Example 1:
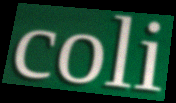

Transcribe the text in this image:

coli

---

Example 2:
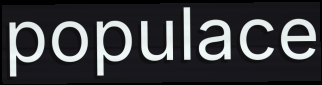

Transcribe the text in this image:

populace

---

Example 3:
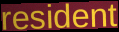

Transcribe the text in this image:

resident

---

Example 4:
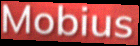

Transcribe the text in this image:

Mobius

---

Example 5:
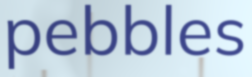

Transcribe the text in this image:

pebbles